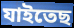
যাইতেছ